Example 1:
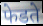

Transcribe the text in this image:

फेडते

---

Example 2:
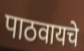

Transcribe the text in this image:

पाठवायचे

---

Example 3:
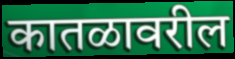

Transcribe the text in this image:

कातळावरील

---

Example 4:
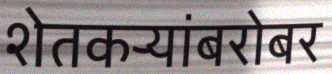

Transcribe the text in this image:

शेतकर्‍यांबरोबर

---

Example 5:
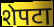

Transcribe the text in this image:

शेपटा